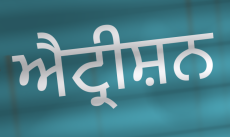
ਐਟ੍ਰੀਸ਼ਨ